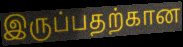
இருப்பதற்கான